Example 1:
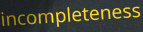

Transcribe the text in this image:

incompleteness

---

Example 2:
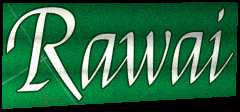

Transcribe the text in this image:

Rawai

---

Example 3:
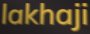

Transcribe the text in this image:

lakhaji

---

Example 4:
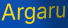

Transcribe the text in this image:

Argaru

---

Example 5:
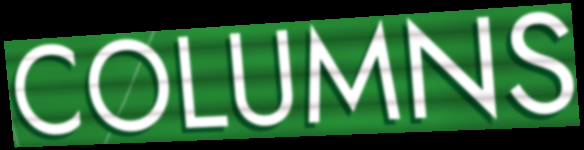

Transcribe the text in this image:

COLUMNS